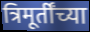
त्रिमूर्तींच्या